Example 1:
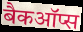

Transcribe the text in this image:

बैकऑप्स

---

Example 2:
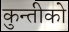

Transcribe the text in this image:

कुन्तीको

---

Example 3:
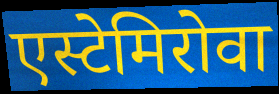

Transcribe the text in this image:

एस्टेमिरोवा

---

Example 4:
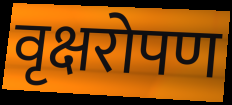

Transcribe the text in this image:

वृक्षरोपण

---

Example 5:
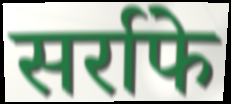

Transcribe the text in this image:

सर्राफे